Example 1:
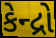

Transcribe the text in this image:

કેન્દ્રો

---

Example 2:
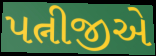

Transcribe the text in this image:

પત્નીજીએ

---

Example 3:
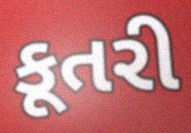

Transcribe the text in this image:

કૂતરી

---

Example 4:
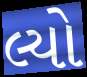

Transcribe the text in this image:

લ્યો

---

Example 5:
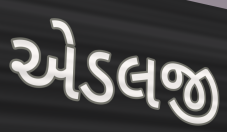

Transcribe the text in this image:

એડલજી